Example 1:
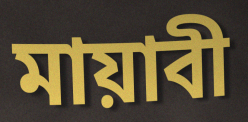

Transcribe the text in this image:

মায়াবী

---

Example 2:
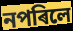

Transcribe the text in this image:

নপৰিলে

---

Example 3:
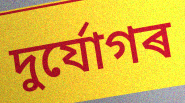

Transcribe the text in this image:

দুৰ্যোগৰ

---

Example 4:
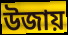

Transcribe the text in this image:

উজায়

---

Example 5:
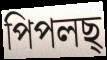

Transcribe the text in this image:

পিপলছ্